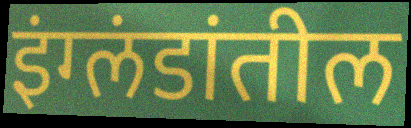
इंग्लंडांतील